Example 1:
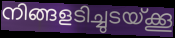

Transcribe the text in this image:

നിങ്ങളടിച്ചുടയ്ക്കൂ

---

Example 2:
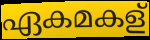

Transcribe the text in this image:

ഏകമകള്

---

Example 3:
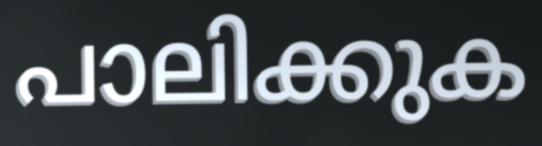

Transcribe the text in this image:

പാലിക്കുക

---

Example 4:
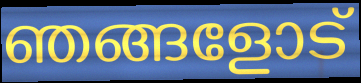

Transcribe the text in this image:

ഞങ്ങളോട്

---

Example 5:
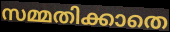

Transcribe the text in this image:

സമ്മതിക്കാതെ